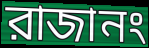
রাজানং